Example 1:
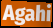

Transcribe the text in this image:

Agahi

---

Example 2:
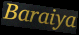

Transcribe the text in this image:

Baraiya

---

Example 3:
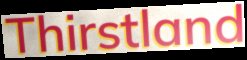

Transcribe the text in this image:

Thirstland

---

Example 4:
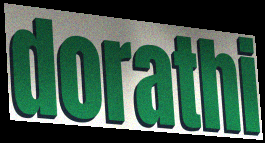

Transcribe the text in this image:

dorathi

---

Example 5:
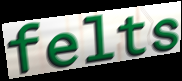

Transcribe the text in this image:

felts